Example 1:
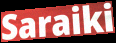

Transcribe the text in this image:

Saraiki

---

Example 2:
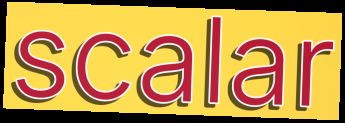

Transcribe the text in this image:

scalar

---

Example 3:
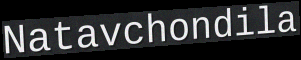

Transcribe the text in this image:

Natavchondila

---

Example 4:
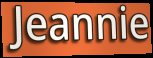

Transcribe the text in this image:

Jeannie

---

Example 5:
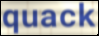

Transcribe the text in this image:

quack